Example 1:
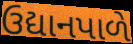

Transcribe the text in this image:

ઉદ્યાનપાળે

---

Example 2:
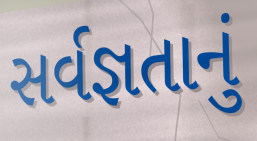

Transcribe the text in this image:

સર્વજ્ઞતાનું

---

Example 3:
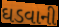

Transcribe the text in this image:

ઘડવાની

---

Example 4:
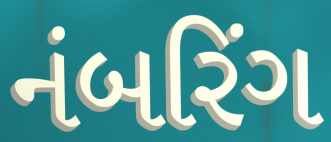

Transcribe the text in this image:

નંબરિંગ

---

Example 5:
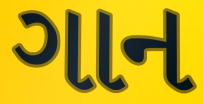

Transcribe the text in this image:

ગાન